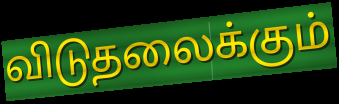
விடுதலைக்கும்